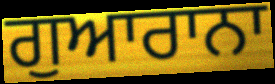
ਗੁਆਰਾਨਾ